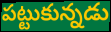
పట్టుకున్నడు